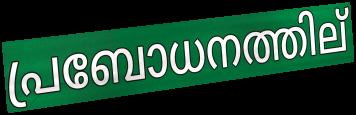
പ്രബോധനത്തില്